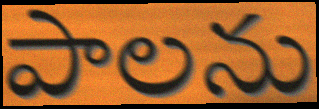
పాలను